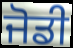
ਜੋਡੀ